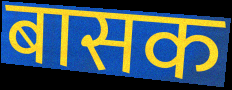
बासक